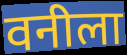
वनीला